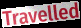
Travelled